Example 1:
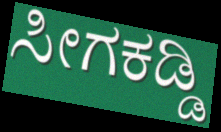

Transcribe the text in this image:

ಸೀಗಕಡ್ಡಿ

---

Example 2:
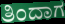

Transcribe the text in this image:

ತಿಂದಾಗ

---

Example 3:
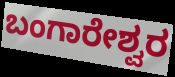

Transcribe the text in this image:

ಬಂಗಾರೇಶ್ವರ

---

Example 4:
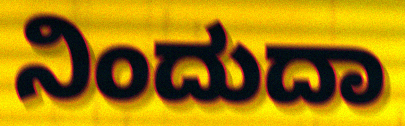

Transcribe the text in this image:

ನಿಂದುದಾ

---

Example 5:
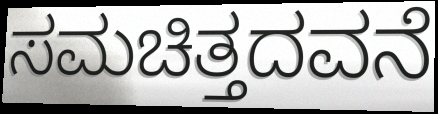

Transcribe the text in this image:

ಸಮಚಿತ್ತದವನೆ